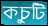
কচুটি